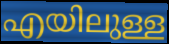
എയിലുള്ള